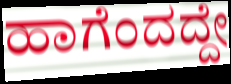
ಹಾಗೆಂದದ್ದೇ